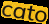
cato